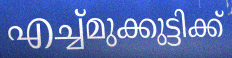
എച്ച്മുക്കുട്ടിക്ക്